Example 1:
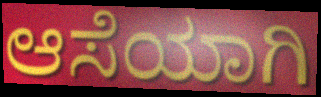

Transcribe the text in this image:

ಆಸೆಯಾಗಿ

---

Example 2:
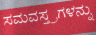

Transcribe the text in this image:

ಸಮವಸ್ತ್ರಗಳನ್ನು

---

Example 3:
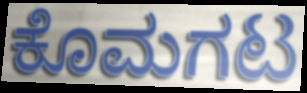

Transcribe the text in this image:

ಕೊಮಗಟ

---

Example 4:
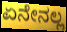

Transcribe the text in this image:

ಏನೇನಲ್ಲ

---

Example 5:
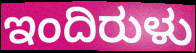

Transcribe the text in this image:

ಇಂದಿರುಳು